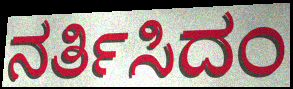
ನರ್ತಿಸಿದಂ